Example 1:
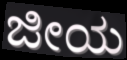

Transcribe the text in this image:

ಜೀಯ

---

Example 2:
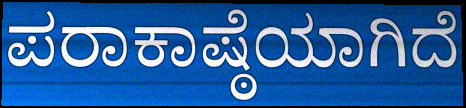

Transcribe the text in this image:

ಪರಾಕಾಷ್ಠೆಯಾಗಿದೆ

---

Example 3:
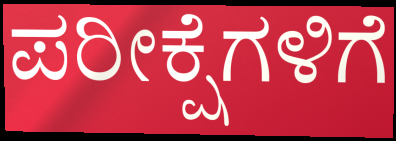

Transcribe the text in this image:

ಪರೀಕ್ಷೆಗಳಿಗೆ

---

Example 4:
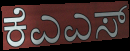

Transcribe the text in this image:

ಕೆಎಎಸ್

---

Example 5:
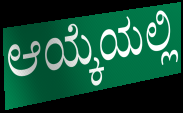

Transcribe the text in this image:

ಆಯ್ಕೆಯಲ್ಲಿ